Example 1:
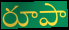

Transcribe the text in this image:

రూపా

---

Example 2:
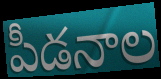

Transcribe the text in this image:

పీడనాల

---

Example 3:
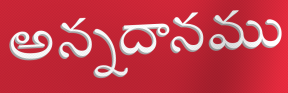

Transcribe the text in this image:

అన్నదానము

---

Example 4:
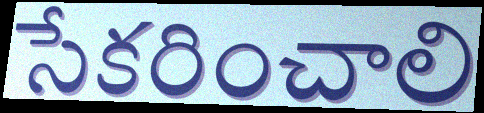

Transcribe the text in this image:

సేకరించాలి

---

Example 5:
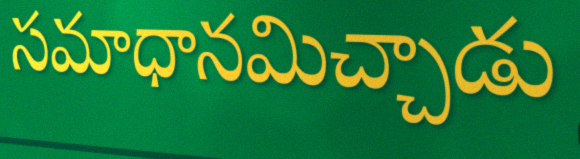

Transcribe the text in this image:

సమాధానమిచ్చాడు